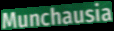
Munchausia